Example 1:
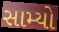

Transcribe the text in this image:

સામ્યો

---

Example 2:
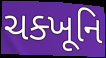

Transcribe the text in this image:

ચક્ખૂનિ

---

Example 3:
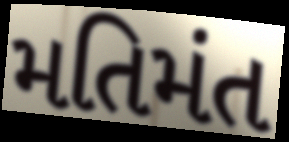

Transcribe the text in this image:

મતિમંત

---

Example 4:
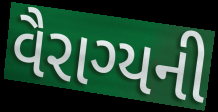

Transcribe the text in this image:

વૈરાગ્યની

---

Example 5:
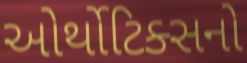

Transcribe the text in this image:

ઓર્થોટિક્સનો